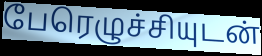
பேரெழுச்சியுடன்